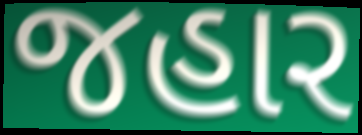
જહાર